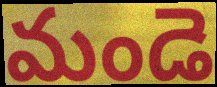
మండె